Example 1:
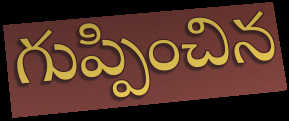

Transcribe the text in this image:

గుప్పించిన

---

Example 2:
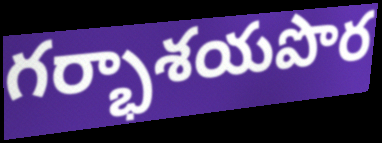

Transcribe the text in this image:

గర్భాశయపొర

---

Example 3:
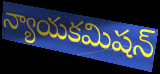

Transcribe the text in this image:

న్యాయకమిషన్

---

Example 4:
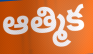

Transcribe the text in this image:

ఆత్మిక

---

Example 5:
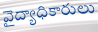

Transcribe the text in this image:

వైద్యాధికారులు